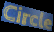
Circle